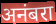
अनंबरा